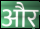
और